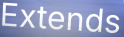
Extends